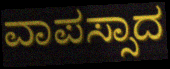
ವಾಪಸ್ಸಾದ